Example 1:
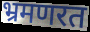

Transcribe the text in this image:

भ्रमणरत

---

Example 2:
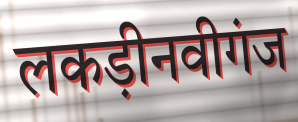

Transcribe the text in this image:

लकड़ीनवीगंज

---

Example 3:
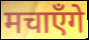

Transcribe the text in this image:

मचाएँगे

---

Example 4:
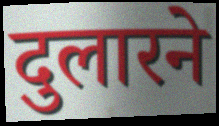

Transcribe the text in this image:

दुलारने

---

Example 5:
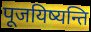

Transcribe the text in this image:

पूजयिष्यन्ति